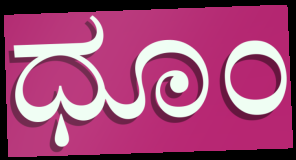
ಧೂಂ